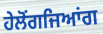
ਹੇਲੋਂਗਜਿਆਂਗ